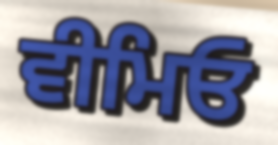
ਵੀਮਿਓ